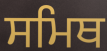
ਸਮਿਥ